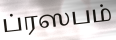
ப்ரஸபம்